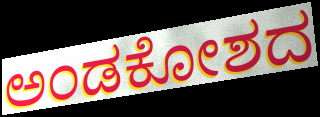
ಅಂಡಕೋಶದ